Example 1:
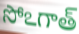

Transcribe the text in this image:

సోఽగాత్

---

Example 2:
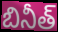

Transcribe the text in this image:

బినీత్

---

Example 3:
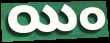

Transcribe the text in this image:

యిం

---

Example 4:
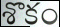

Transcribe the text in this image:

శొకం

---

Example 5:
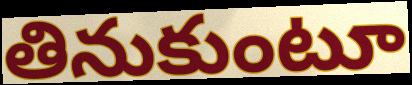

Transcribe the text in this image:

తినుకుంటూ